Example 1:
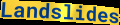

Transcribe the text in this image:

Landslides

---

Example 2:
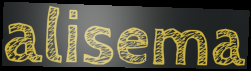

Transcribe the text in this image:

alisema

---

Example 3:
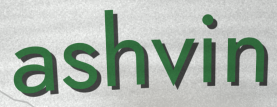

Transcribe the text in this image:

ashvin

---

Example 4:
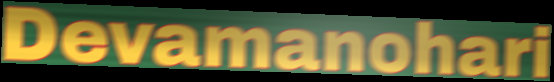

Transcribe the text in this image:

Devamanohari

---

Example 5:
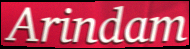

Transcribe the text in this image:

Arindam